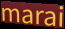
marai